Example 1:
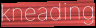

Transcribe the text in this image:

kneading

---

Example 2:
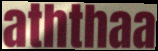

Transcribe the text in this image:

aththaa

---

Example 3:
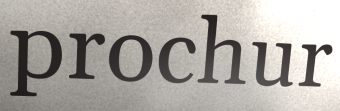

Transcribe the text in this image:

prochur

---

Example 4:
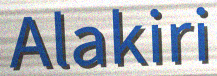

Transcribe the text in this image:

Alakiri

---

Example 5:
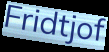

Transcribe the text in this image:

Fridtjof